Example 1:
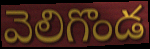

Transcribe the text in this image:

వెలిగొండ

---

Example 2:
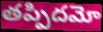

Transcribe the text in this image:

తప్పిదమో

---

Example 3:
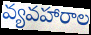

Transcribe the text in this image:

వ్యవహారాల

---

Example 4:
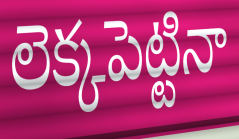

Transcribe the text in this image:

లెక్కపెట్టినా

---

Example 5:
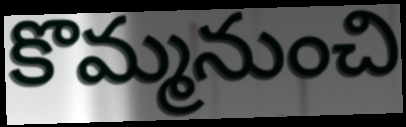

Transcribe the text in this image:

కొమ్మనుంచి